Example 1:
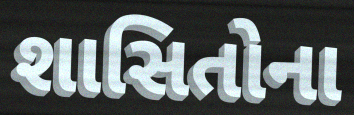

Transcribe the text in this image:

શાસિતોના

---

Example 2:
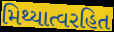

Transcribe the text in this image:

મિથ્યાત્વરહિત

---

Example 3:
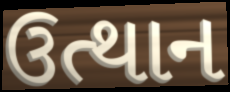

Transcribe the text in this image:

ઉત્થાન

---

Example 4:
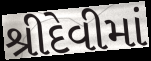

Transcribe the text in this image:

શ્રીદેવીમાં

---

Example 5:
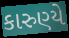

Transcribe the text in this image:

કારુણ્યે